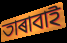
তাৰাবাই